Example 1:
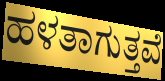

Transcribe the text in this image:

ಹಳತಾಗುತ್ತವೆ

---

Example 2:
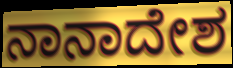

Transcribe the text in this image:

ನಾನಾದೇಶ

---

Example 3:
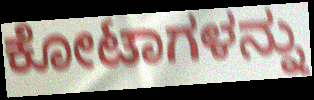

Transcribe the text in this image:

ಕೋಟಾಗಳನ್ನು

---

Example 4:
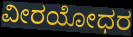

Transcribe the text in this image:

ವೀರಯೋಧರ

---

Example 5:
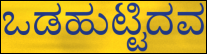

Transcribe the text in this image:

ಒಡಹುಟ್ಟಿದವ